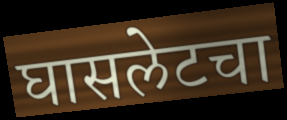
घासलेटचा